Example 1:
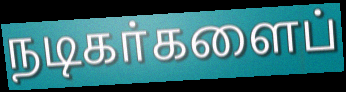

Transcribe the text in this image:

நடிகர்களைப்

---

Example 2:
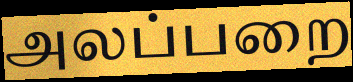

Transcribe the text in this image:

அலப்பறை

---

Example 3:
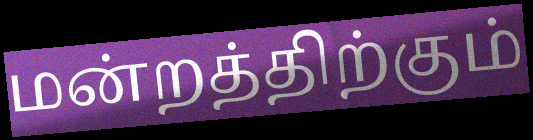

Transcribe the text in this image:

மன்றத்திற்கும்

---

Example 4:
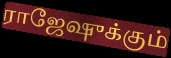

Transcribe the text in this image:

ராஜேஷுக்கும்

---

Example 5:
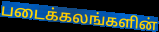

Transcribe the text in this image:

படைக்கலங்களின்